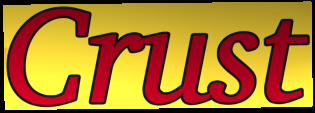
Crust